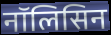
नॉलिसिन